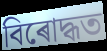
বিৰোদ্ধত